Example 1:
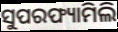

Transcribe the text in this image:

ସୁପରଫ୍ୟାମିଲି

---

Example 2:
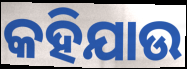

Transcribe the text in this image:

କହିଯାଉ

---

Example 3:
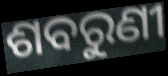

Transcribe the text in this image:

ଶବରୁଣୀ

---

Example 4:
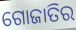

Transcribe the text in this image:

ଗୋଜାତିର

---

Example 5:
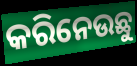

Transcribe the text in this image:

କରିନେଉଛୁ